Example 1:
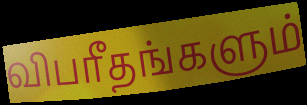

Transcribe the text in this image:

விபரீதங்களும்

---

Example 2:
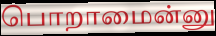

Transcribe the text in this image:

பொறாமைன்னு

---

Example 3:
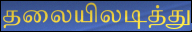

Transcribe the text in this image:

தலையிலடித்து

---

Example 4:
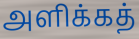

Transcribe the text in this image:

அளிக்கத்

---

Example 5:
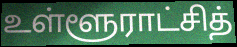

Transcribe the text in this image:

உள்ளூராட்சித்